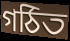
গঠিত